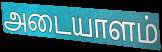
அடையாளம்